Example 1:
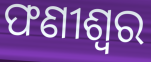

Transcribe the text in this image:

ଫଣୀଶ୍ୱର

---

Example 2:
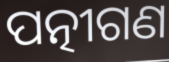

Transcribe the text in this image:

ପତ୍ନୀଗଣ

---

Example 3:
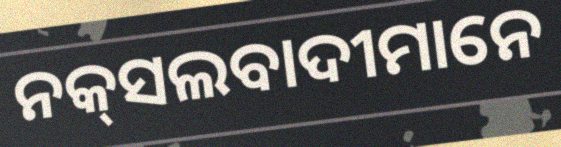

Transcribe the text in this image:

ନକ୍‌ସଲବାଦୀମାନେ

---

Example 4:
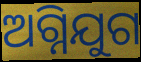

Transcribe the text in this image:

ଅଗ୍ନିଯୁଗ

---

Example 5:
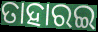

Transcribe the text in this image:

ତାହାରଇ